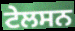
ਟੇਲਸਨ